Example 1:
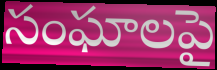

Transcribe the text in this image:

సంఘాలపై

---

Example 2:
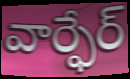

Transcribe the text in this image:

వార్ఫేర్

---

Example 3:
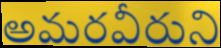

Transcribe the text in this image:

అమరవీరుని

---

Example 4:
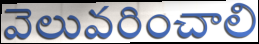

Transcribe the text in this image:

వెలువరించాలి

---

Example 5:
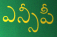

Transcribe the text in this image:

ఎన్సీపీ